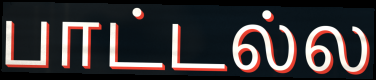
பாட்டல்ல